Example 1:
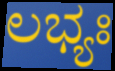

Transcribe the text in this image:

ಲಭ್ಯಃ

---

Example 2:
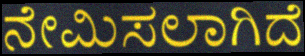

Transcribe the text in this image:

ನೇಮಿಸಲಾಗಿದೆ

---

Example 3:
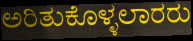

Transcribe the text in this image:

ಅರಿತುಕೊಳ್ಳಲಾರರು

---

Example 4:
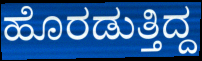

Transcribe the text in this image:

ಹೊರಡುತ್ತಿದ್ದ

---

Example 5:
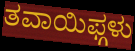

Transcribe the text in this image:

ತವಾಯಿಫ್ಗಳು